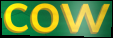
cow